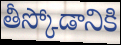
తీస్కోడానికి